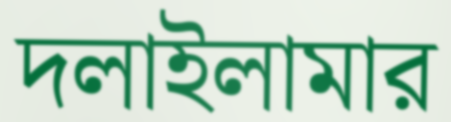
দলাইলামার